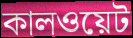
কালওয়েট